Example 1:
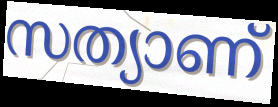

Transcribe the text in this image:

സത്യാണ്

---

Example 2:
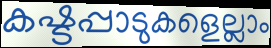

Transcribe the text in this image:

കഷ്ടപ്പാടുകളെല്ലാം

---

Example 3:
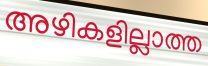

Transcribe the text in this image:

അഴികളില്ലാത്ത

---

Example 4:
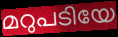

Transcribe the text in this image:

മറുപടിയേ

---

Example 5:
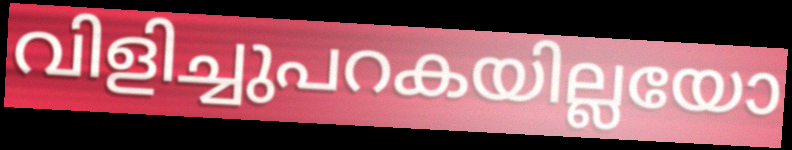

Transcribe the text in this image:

വിളിച്ചുപറകയില്ലയോ